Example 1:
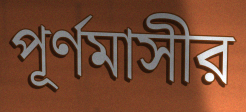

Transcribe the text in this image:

পূর্ণমাসীর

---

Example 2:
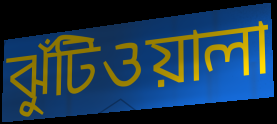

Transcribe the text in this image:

ঝুঁটিওয়ালা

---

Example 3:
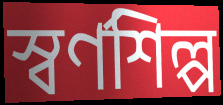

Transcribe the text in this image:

স্বর্ণশিল্প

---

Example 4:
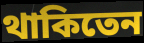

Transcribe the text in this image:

থাকিতেন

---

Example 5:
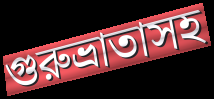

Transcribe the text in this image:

গুরুভ্রাতাসহ